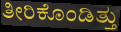
ತೀರಿಕೊಂಡಿತ್ತು